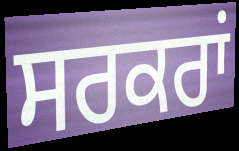
ਸਰਕਰਾਂ